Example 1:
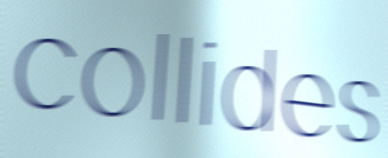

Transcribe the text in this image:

collides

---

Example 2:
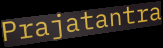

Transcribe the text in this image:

Prajatantra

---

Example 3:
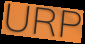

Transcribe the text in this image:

URP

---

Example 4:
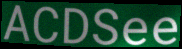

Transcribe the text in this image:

ACDSee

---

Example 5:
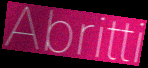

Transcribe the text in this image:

Abritti